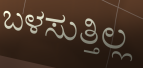
ಬಳಸುತ್ತಿಲ್ಲ